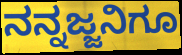
ನನ್ನಜ್ಜನಿಗೂ